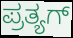
ಪ್ರತ್ಯಗ್